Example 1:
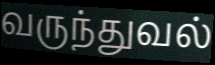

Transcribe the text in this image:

வருந்துவல்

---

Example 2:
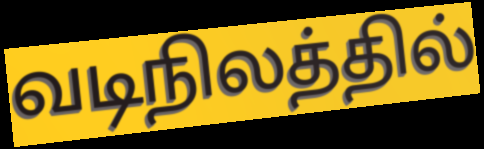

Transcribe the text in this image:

வடிநிலத்தில்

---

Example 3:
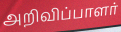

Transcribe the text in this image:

அறிவிப்பாளர்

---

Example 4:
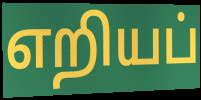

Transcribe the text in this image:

எறியப்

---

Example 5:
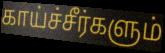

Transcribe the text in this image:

காய்ச்சீர்களும்